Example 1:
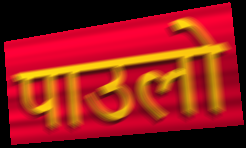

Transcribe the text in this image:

पाउलो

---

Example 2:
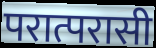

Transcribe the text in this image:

परात्परासी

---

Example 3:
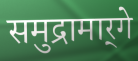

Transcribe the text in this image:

समुद्रामार्गे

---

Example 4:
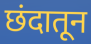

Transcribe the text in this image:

छंदातून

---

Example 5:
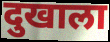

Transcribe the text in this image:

दुखाला